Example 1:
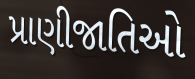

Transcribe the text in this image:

પ્રાણીજાતિઓ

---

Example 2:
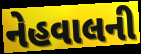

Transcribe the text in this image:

નેહવાલની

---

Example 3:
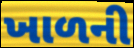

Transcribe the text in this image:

ખાળની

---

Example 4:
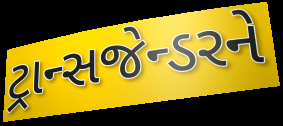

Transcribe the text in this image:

ટ્રાન્સજેન્ડરને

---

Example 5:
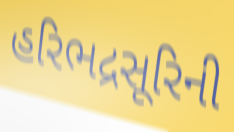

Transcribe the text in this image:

હરિભદ્રસૂરિની